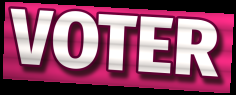
VOTER